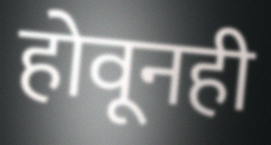
होवूनही